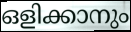
ഒളിക്കാനും